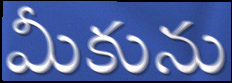
మీకును